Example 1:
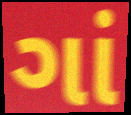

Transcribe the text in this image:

ગાં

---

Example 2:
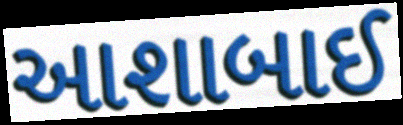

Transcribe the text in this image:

આશાબાઈ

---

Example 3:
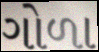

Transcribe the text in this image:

ગોળા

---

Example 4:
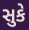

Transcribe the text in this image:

સુકે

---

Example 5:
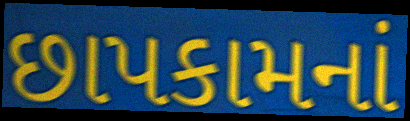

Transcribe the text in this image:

છાપકામનાં